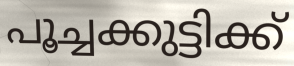
പൂച്ചക്കുട്ടിക്ക്